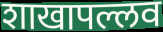
शाखापल्लव